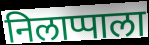
निलाप्पाला